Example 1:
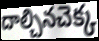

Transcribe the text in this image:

దాల్చినచెక్క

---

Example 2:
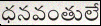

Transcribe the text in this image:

ధనవంతులే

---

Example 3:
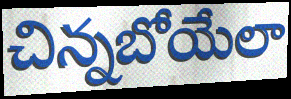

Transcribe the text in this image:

చిన్నబోయేలా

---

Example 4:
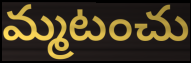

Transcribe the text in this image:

మ్మటంచు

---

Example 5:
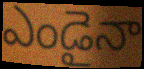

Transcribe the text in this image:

ఎండైనా